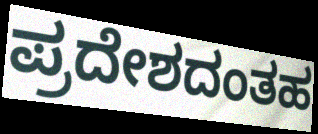
ಪ್ರದೇಶದಂತಹ